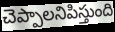
చెప్పాలనిపిస్తుంది